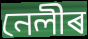
নেলীৰ